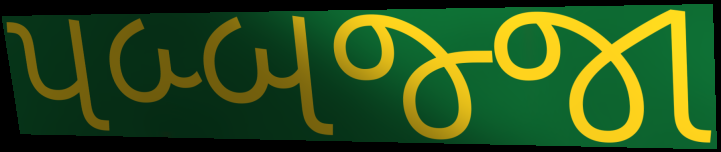
પબ્બજ્જા